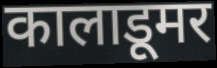
कालाडूमर